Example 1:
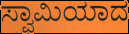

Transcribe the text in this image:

ಸ್ವಾಮಿಯಾದ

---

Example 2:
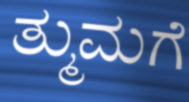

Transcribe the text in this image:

ತ್ಮುಮಗೆ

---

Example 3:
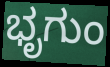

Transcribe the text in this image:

ಭೃಗುಂ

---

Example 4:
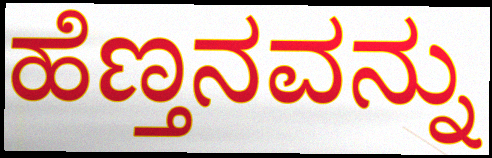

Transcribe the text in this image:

ಹೆಣ್ತನವನ್ನು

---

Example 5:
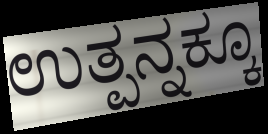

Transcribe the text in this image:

ಉತ್ಪನ್ನಕ್ಕೂ